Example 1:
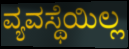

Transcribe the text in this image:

ವ್ಯವಸ್ಥೆಯಿಲ್ಲ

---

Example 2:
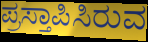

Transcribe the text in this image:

ಪ್ರಸ್ತಾಪಿಸಿರುವ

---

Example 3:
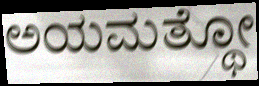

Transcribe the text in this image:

ಅಯಮತ್ಥೋ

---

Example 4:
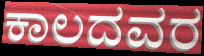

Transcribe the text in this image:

ಕಾಲದವರ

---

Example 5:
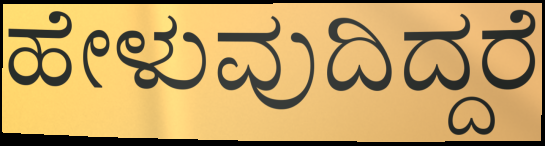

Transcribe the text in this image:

ಹೇಳುವುದಿದ್ದರೆ